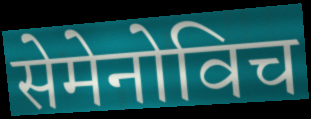
सेमेनोविच